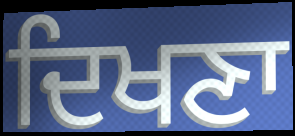
ਦਿਖਣਾ